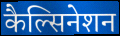
कैल्सिनेशन